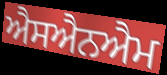
ਐਸਐਨਐਮ